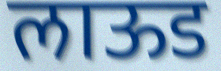
लाऊड